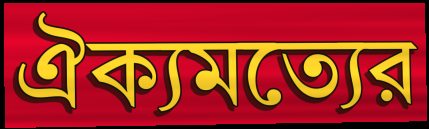
ঐক্যমত্যের